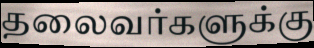
தலைவர்களுக்கு